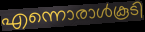
എന്നൊരാൾകൂടി